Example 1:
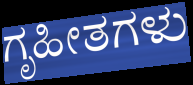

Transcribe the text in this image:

ಗೃಹೀತಗಳು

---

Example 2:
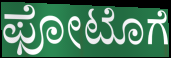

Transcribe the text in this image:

ಫೋಟೊಗೆ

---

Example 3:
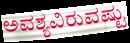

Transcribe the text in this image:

ಅವಶ್ಯವಿರುವಷ್ಟು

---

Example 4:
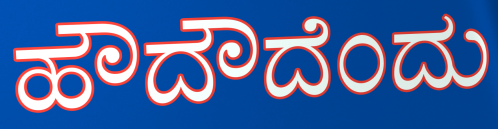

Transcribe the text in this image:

ಹೌದೌದೆಂದು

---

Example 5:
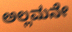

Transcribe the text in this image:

ಅಲ್ಲಮನೇ